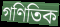
গণিতিক